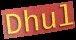
Dhul